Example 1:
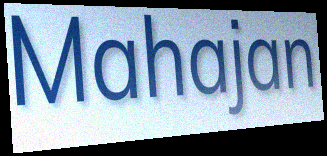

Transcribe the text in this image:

Mahajan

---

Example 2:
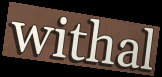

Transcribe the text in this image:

withal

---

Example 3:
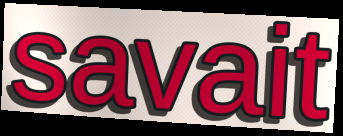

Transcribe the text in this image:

savait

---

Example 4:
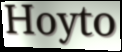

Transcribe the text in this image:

Hoyto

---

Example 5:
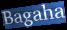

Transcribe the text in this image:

Bagaha